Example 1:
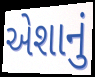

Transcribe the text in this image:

એશાનું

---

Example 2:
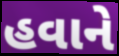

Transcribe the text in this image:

હવાને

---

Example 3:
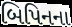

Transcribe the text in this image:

બિપિનના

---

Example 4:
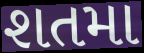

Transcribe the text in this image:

શતમા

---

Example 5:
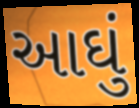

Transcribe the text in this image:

આઘું